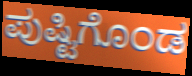
ಪುಷ್ಟಿಗೊಂಡ